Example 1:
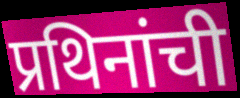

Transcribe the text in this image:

प्रथिनांची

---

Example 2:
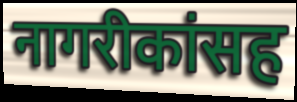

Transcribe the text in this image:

नागरीकांसह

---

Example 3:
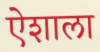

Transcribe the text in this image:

ऐशाला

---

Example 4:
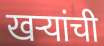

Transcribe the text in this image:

खऱ्यांची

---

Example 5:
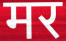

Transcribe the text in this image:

मर